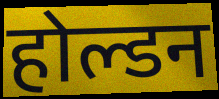
होल्डन